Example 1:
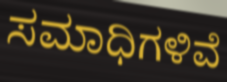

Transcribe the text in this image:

ಸಮಾಧಿಗಳಿವೆ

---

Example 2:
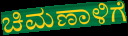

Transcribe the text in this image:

ಚಿಮಣಾಳಿಗೆ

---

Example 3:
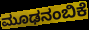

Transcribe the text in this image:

ಮೂಢನಂಬಿಕೆ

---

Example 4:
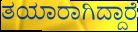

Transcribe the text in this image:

ತಯಾರಾಗಿದ್ದಾರೆ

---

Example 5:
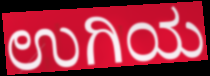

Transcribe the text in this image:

ಉಗಿಯ